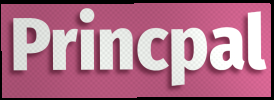
Princpal